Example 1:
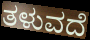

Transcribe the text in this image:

ತಳುವದೆ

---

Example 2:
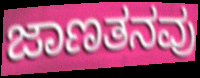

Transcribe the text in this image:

ಜಾಣತನವು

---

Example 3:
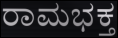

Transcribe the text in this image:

ರಾಮಭಕ್ತ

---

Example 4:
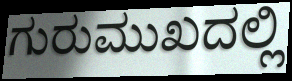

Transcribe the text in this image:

ಗುರುಮುಖದಲ್ಲಿ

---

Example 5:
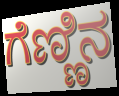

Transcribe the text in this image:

ಗೆಣ್ಣಿನ